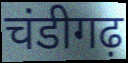
चंडीगढ़